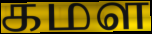
கமள